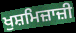
ਖੁਸ਼ਮਿਜ਼ਾਜ਼ੀ